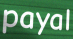
payal